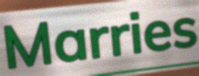
Marries